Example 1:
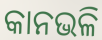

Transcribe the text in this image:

କାନଭଳି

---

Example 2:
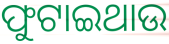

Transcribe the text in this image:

ଫୁଟାଇଥାଉ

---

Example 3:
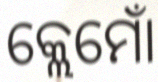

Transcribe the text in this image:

କ୍ଲେମୋଁ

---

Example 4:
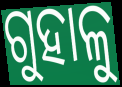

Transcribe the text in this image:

ଗୁହାଳୁ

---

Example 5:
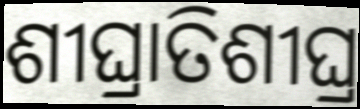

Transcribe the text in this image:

ଶୀଘ୍ରାତିଶୀଘ୍ର